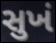
સુખં